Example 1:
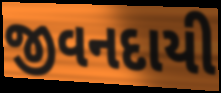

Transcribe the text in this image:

જીવનદાયી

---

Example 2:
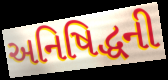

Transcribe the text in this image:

અનિષિદ્ધની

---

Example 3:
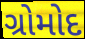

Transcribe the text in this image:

ગ્રોમોદ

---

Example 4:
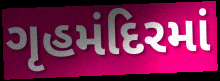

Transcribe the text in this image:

ગૃહમંદિરમાં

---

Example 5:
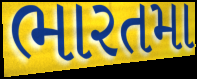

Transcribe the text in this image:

ભારતમા